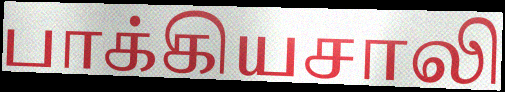
பாக்கியசாலி